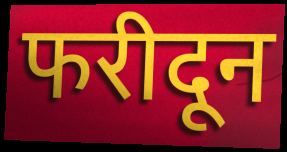
फरीदून